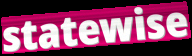
statewise